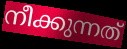
നീക്കുന്നത്